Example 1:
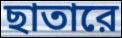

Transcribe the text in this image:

ছাতারে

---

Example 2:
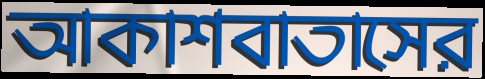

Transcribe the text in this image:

আকাশবাতাসের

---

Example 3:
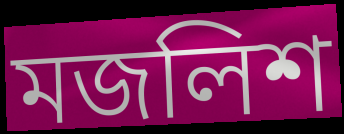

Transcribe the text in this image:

মজলিশ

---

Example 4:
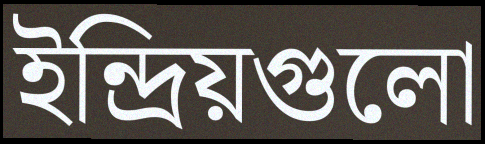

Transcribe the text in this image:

ইন্দ্রিয়গুলো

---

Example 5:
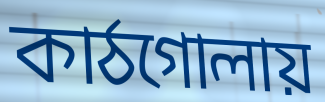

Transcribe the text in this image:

কাঠগোলায়